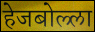
हेजबोल्ला